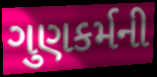
ગુણકર્મની